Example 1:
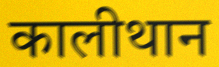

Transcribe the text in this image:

कालीथान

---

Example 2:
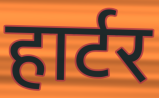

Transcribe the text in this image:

हार्टर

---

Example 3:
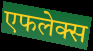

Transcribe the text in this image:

एफलेक्स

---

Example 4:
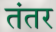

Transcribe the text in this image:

तंतर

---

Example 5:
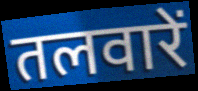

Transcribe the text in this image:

तलवारें